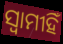
ସ୍ଵାମୀହିଁ